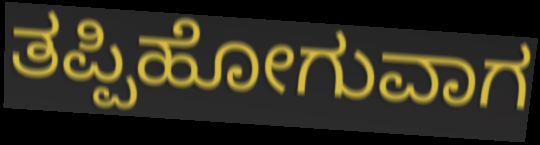
ತಪ್ಪಿಹೋಗುವಾಗ